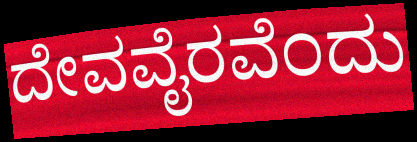
ದೇವವೈರವೆಂದು